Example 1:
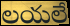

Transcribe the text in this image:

లయలే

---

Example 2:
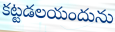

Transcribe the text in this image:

కట్టడలయందును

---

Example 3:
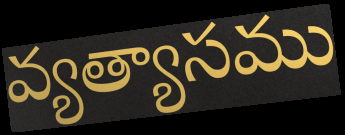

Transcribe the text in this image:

వ్యత్యాసము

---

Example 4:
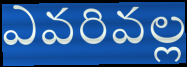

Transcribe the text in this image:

ఎవరివల్ల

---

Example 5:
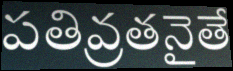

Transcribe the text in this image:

పతివ్రతనైతే